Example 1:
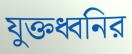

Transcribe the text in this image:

যুক্তধ্বনির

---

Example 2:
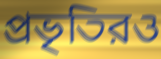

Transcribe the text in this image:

প্রভৃতিরও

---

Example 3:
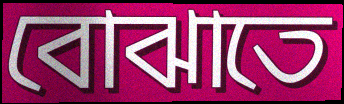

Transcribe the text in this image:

বোঝাতে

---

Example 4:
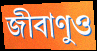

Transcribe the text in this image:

জীবাণুও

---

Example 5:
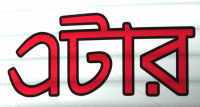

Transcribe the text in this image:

এটার